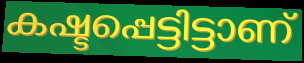
കഷ്ടപ്പെട്ടിട്ടാണ്